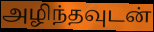
அழிந்தவுடன்